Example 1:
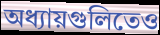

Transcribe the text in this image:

অধ্যায়গুলিতেও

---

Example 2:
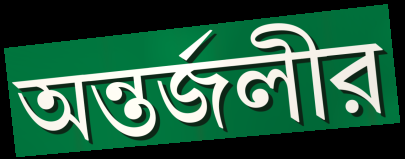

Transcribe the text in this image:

অন্তর্জলীর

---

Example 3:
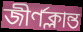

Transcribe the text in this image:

জীর্ণক্লান্ত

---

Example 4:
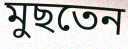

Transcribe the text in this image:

মুছতেন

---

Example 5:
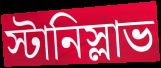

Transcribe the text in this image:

স্টানিস্লাভ